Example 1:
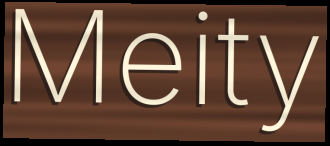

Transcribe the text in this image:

Meity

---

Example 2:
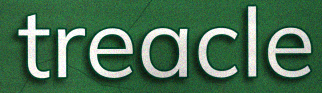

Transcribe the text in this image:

treacle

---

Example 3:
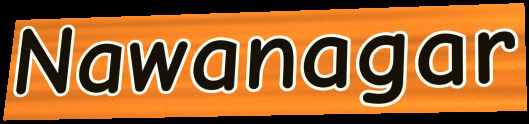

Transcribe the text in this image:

Nawanagar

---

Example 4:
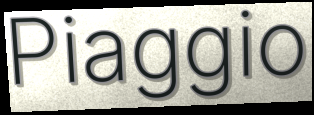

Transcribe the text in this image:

Piaggio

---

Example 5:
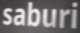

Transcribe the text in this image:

saburi